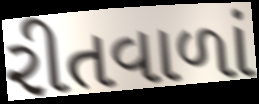
રીતવાળાં